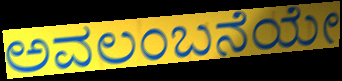
ಅವಲಂಬನೆಯೇ